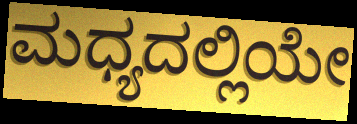
ಮಧ್ಯದಲ್ಲಿಯೇ